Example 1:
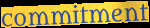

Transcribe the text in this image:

commitment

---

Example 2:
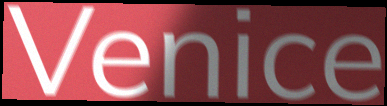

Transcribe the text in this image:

Venice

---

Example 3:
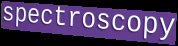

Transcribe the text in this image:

spectroscopy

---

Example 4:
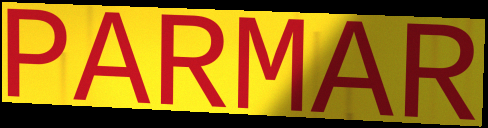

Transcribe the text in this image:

PARMAR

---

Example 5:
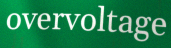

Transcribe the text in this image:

overvoltage